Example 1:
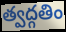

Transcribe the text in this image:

త్వద్గతిం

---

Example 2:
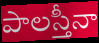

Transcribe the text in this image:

పాలస్తీనా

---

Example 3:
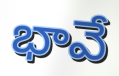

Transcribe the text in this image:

భావే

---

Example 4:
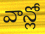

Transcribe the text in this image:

వాన్లో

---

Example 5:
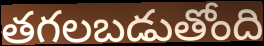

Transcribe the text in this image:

తగలబడుతోంది